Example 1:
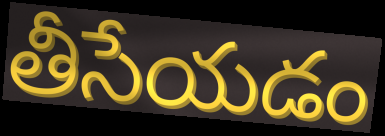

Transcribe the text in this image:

తీసేయడం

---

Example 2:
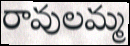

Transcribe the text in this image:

రావులమ్మ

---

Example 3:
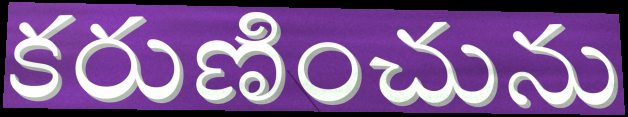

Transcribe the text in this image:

కరుణించును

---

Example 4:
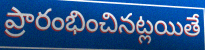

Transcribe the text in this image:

ప్రారంభించినట్లయితే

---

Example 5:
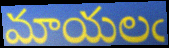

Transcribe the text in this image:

మాయలఁ